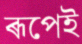
ৰূপেই